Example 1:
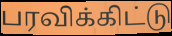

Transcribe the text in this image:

பரவிக்கிட்டு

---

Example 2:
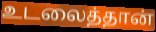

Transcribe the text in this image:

உடலைத்தான்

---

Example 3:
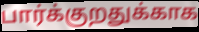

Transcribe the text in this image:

பார்க்குறதுக்காக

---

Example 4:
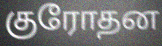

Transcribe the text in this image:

குரோதன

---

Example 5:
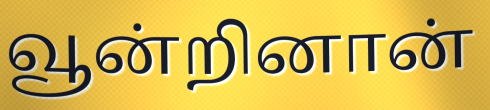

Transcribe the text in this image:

வூன்றினான்